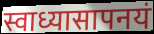
स्वाध्यासापनयं